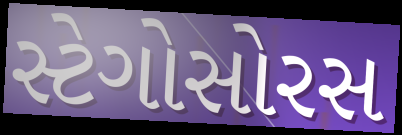
સ્ટેગોસોરસ